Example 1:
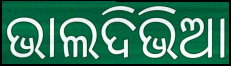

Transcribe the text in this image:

ଭାଲଦିଭିଆ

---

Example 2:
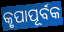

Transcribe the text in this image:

କୃପାପୂର୍ବକ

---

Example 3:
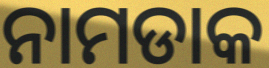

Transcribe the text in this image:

ନାମଡାକ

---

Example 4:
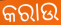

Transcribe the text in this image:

କରାଉ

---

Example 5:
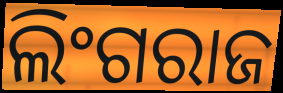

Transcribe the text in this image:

ଲିଂଗରାଜ